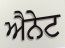
ਐਨੇਟ